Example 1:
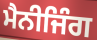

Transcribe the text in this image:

ਮੈਨੀਜਿੰਗ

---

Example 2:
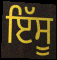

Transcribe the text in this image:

ਇੱਸੂ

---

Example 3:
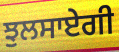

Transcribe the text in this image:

ਝੁਲਸਾਏਗੀ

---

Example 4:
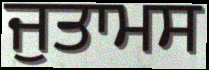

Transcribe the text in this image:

ਜੁਤਾਮਸ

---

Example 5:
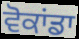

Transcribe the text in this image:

ਵੋਕਾਂਡਾ